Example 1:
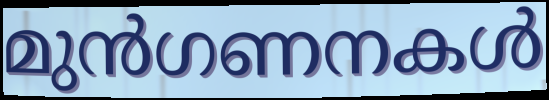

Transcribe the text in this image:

മുൻഗണനകൾ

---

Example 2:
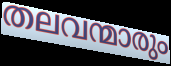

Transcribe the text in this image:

തലവന്മാരും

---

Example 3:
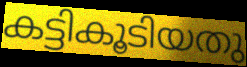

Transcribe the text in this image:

കട്ടികൂടിയതു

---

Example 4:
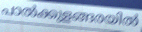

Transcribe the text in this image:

പാൽക്കുളങ്ങരയിൽ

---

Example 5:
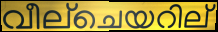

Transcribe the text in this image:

വീല്ചെയറില്